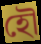
হৌ